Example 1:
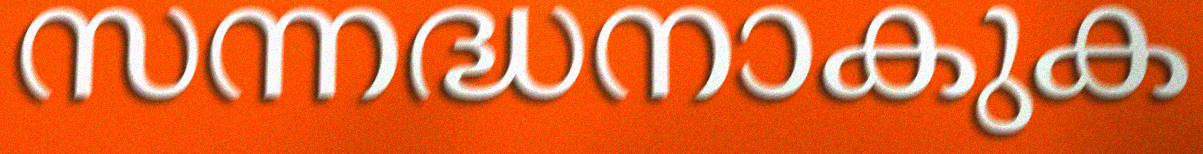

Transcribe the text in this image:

സന്നദ്ധനാകുക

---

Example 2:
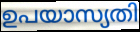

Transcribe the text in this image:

ഉപയാസ്യതി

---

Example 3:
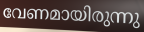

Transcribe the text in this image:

വേണമായിരുന്നു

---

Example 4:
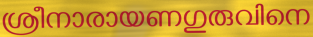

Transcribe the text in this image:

ശ്രീനാരായണഗുരുവിനെ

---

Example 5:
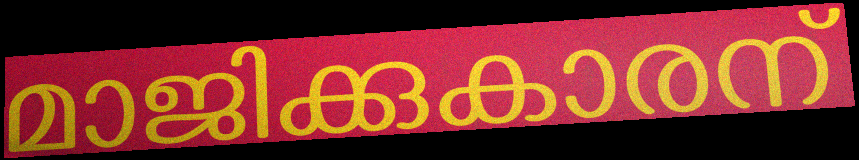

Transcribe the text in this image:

മാജിക്കുകാരന്